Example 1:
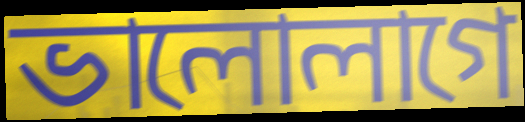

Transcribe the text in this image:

ভালোলাগে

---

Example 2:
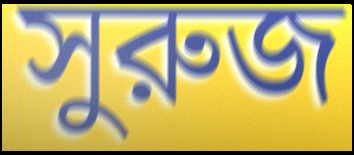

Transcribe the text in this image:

সুরুজ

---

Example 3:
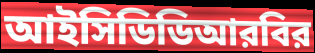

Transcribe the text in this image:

আইসিডিডিআরবির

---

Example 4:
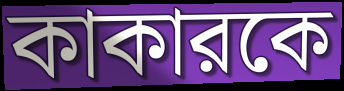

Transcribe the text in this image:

কাকারকে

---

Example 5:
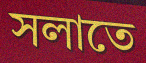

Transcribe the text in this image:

সলাতে